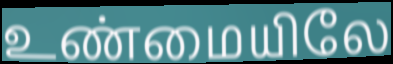
உண்மையிலே